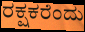
ರಕ್ಷಕರೆಂದು